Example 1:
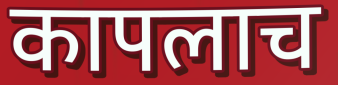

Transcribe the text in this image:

कापलाच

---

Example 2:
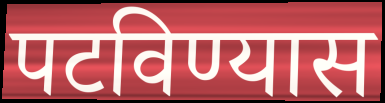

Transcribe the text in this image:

पटविण्यास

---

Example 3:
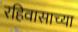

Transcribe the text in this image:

रहिवासाच्या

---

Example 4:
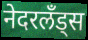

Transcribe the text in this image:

नेदरलँड्स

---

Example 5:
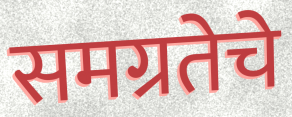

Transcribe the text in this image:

समग्रतेचे